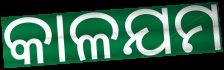
କାଳଯମ